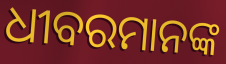
ଧୀବରମାନଙ୍କ